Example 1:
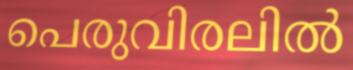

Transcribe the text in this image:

പെരുവിരലിൽ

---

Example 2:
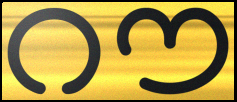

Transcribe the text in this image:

റൗ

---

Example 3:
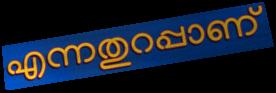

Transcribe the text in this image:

എന്നതുറപ്പാണ്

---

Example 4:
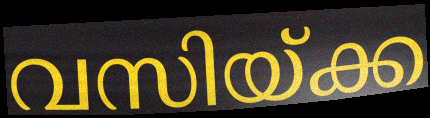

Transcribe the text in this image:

വസിയ്ക്ക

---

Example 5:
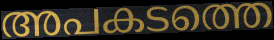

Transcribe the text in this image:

അപകടത്തെ